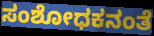
ಸಂಶೋಧಕನಂತೆ